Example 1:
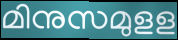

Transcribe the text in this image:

മിനുസമുളള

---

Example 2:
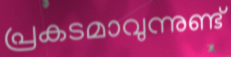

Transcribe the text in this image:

പ്രകടമാവുന്നുണ്ട്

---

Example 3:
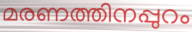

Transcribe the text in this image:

മരണത്തിനപ്പുറം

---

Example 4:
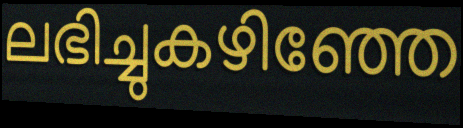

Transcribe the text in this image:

ലഭിച്ചുകഴിഞ്ഞേ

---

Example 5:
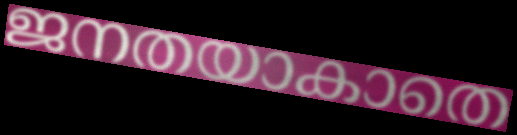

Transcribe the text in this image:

ജനതയാകാതെ